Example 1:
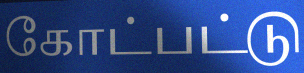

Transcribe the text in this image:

கோட்பட்டு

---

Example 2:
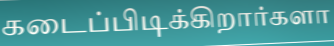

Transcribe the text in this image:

கடைப்பிடிக்கிறார்களா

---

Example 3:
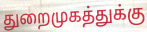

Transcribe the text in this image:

துறைமுகத்துக்கு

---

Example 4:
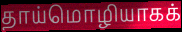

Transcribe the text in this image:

தாய்மொழியாகக்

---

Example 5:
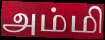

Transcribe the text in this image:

அம்மி